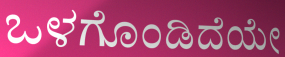
ಒಳಗೊಂಡಿದೆಯೇ